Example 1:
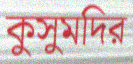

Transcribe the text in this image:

কুসুমদির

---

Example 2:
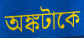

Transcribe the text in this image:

অঙ্কটাকে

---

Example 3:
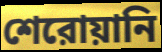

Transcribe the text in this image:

শেরোয়ানি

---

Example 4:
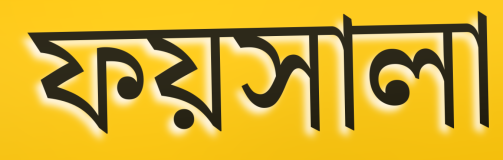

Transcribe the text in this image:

ফয়সালা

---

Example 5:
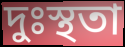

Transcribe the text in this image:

দুঃস্থতা